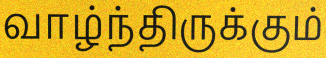
வாழ்ந்திருக்கும்